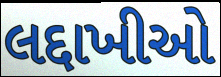
લદ્દાખીઓ